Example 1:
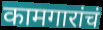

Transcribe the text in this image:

कामगारांचं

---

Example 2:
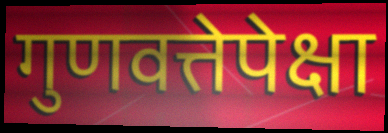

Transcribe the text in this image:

गुणवत्तेपेक्षा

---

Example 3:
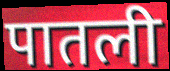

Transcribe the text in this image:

पातली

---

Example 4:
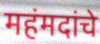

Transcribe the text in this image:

महंमदांचे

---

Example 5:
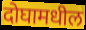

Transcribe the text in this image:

दोघामधील